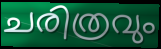
ചരിത്രവും